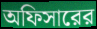
অফিসারের